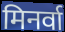
मिनर्वा